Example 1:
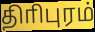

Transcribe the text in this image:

திரிபுரம்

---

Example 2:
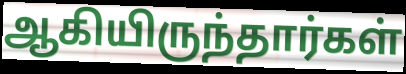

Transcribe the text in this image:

ஆகியிருந்தார்கள்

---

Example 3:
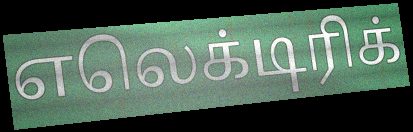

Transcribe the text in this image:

எலெக்டிரிக்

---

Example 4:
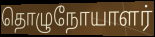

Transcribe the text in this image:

தொழுநோயாளர்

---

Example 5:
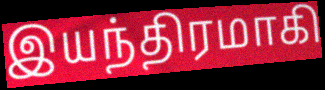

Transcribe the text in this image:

இயந்திரமாகி